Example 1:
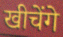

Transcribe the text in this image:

खीचेंगे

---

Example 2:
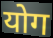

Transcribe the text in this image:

योग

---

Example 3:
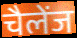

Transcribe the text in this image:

चैलेंज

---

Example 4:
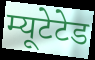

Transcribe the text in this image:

म्यूटेटेड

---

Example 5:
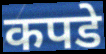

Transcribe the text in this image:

कपडे